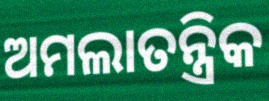
ଅମଲାତନ୍ତ୍ରିକ